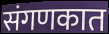
संगणकात